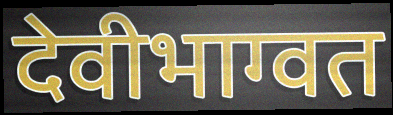
देवीभाग्वत